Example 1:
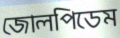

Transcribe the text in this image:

জোলপিডেম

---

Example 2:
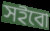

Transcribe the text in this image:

সইবো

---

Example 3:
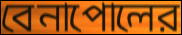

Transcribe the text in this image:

বেনাপোলের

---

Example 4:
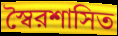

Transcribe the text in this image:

স্বৈরশাসিত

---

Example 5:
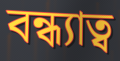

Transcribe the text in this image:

বন্ধ্যাত্ব